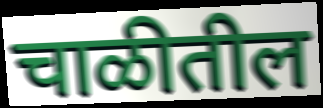
चाळीतील